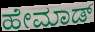
ಹೇಮಾಡ್